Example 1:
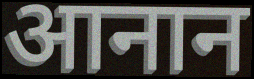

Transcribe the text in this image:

आनान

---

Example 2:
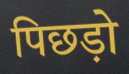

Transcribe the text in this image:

पिछड़ो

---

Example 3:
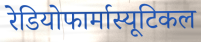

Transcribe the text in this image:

रेडियोफार्मास्यूटिकल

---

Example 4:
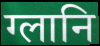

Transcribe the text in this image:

ग्लानि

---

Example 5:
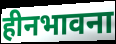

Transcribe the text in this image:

हीनभावना